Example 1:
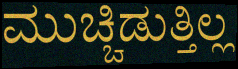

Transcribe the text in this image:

ಮುಚ್ಚಿಡುತ್ತಿಲ್ಲ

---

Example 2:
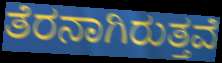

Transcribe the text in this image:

ತೆರನಾಗಿರುತ್ತವೆ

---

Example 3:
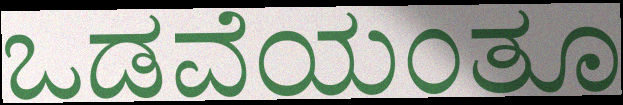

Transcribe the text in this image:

ಒಡವೆಯಂತೂ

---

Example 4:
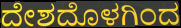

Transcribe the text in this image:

ದೇಶದೊಳಗಿಂದ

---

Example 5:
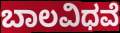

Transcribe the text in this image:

ಬಾಲವಿಧವೆ